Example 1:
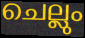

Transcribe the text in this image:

ചെല്ലും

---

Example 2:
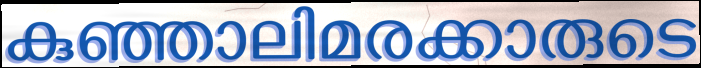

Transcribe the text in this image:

കുഞ്ഞാലിമരക്കാരുടെ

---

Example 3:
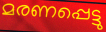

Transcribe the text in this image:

മരണപ്പെട്ടു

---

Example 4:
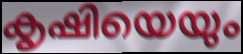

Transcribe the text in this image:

കൃഷിയെയും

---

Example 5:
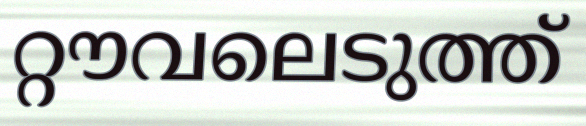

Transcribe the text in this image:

റ്റൗവലെടുത്ത്